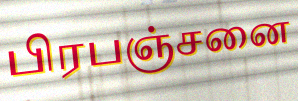
பிரபஞ்சனை